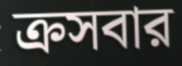
ক্রসবার